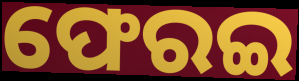
ଫେରଇ